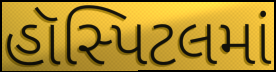
હૉસ્પિટલમાં